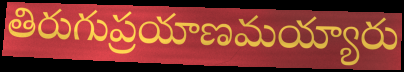
తిరుగుప్రయాణమయ్యారు